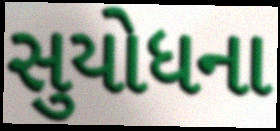
સુયોધના